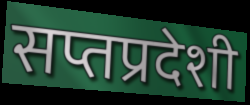
सप्तप्रदेशी